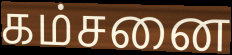
கம்சனை